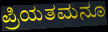
ಪ್ರಿಯತಮನೂ